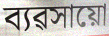
ব্যৱসায়ো